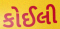
કોઈલી